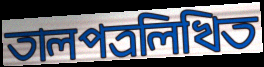
তালপত্রলিখিত